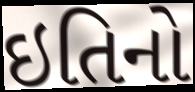
ઇતિનો